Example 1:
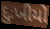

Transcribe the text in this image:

દુઃખીયો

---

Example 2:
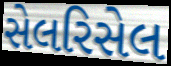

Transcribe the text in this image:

સેલરિસેલ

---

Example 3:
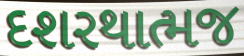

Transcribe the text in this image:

દશરથાત્મજ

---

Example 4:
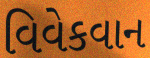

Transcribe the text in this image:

વિવેકવાન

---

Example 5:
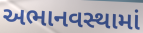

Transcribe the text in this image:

અભાનવસ્થામાં